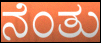
ನೆಂತು